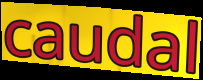
caudal